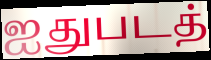
ஐதுபடத்